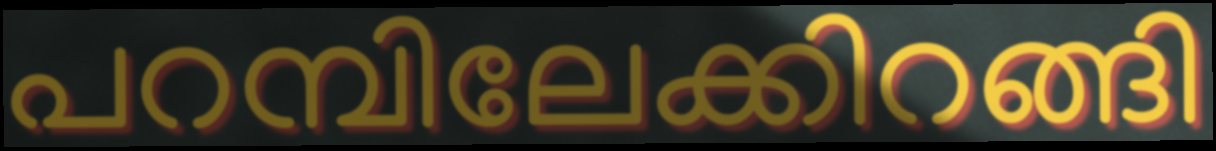
പറമ്പിലേക്കിറങ്ങി